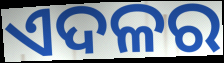
ଏଦଳର